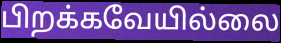
பிறக்கவேயில்லை